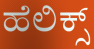
ಹೆಲಿಕ್ಸ್